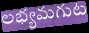
లభ్యమగుట